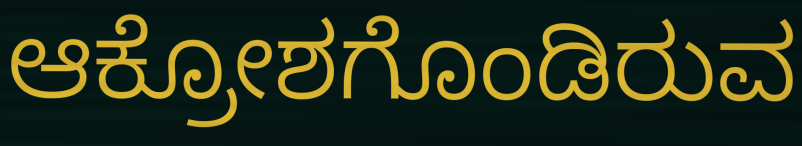
ಆಕ್ರೋಶಗೊಂಡಿರುವ